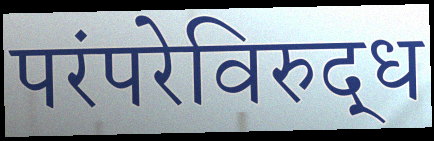
परंपरेविरुद्ध